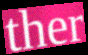
ther